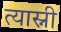
त्यास्नी